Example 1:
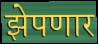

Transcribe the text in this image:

झेपणार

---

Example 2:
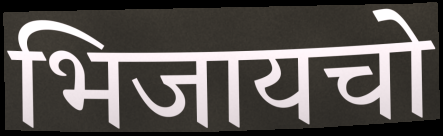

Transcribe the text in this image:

भिजायचो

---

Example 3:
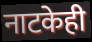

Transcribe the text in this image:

नाटकेही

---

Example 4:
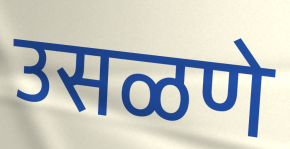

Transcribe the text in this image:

उसळणे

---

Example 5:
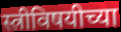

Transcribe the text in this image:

स्त्रीविषयीच्या